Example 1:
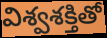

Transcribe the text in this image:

విశ్వశక్తితో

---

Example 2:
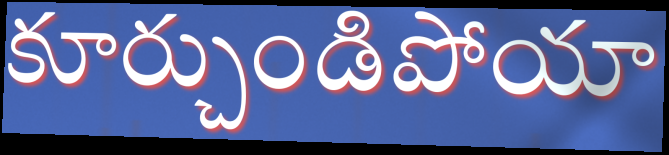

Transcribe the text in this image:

కూర్చుండిపోయా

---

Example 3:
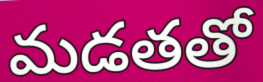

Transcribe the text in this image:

మడతతో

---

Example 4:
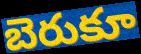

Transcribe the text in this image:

బెరుకూ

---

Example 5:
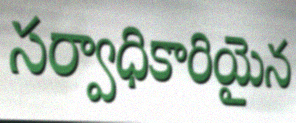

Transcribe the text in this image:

సర్వాధికారియైన